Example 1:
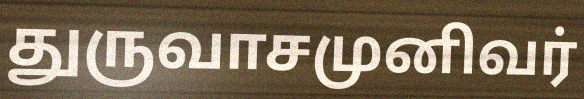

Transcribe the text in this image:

துருவாசமுனிவர்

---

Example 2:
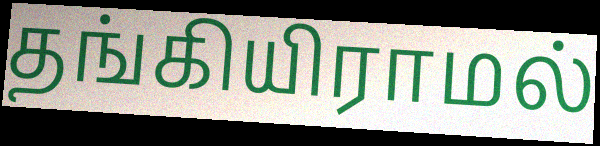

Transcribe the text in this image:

தங்கியிராமல்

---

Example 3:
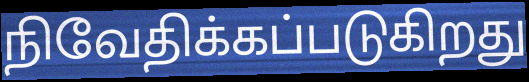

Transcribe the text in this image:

நிவேதிக்கப்படுகிறது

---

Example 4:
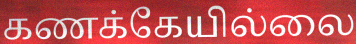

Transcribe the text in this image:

கணக்கேயில்லை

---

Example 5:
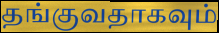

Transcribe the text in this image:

தங்குவதாகவும்